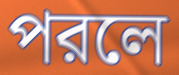
পরলে